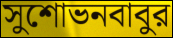
সুশোভনবাবুর